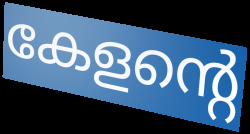
കേളന്റെ